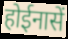
होईनासें